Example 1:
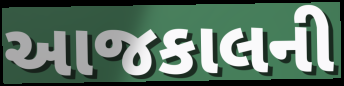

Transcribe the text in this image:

આજકાલની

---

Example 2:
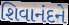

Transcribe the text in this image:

શિવાનંદને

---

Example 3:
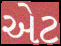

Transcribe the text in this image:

એટ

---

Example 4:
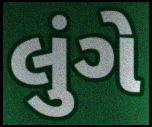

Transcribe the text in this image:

લુંગે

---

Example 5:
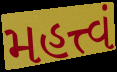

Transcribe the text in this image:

મહત્ત્વં